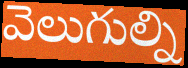
వెలుగుల్ని